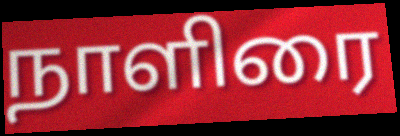
நாளிரை